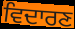
ਵਿਦਾਰਣ